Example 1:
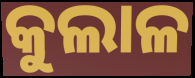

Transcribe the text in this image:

କୁଲାଳ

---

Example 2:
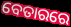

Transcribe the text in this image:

ବେତାରରେ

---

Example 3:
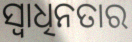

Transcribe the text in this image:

ସ୍ୱାଧିନତାର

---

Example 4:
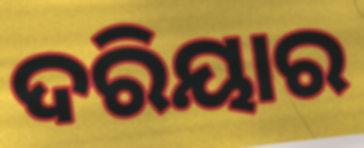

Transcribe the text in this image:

ଦରିୟାର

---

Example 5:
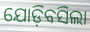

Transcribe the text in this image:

ଯୋଡ଼ିବସିଲା